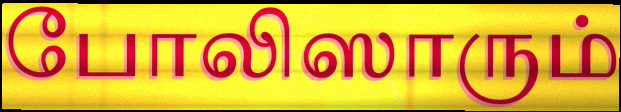
போலிஸாரும்